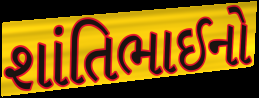
શાંતિભાઈનો